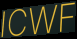
ICWF